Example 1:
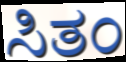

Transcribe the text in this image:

ಸಿತಂ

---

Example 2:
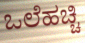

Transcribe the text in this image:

ಒಲೆಹಚ್ಚಿ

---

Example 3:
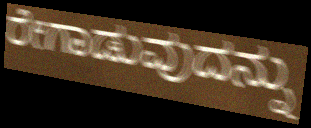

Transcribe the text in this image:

ರೇಗಾಡುವುದನ್ನು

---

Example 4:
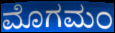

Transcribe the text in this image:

ಮೊಗಮಂ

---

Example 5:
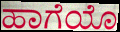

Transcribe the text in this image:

ಹಾಗೆಯೊ